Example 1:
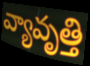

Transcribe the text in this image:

వ్యావృత్తి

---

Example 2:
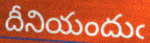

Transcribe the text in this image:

దీనియందుఁ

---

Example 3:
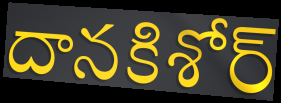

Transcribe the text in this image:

దానకిశోర్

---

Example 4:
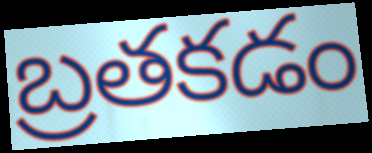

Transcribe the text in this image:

బ్రతకడం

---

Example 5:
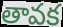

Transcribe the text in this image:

తావక